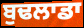
ਬੁਢਲਾਡਾ